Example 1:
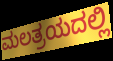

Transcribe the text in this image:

ಮಲತ್ರಯದಲ್ಲಿ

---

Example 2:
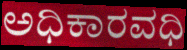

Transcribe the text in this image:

ಅಧಿಕಾರವಧಿ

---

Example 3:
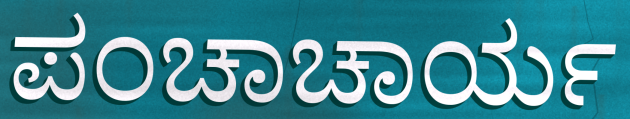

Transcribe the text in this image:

ಪಂಚಾಚಾರ್ಯ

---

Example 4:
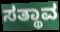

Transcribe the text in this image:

ಸತ್ಥಾವ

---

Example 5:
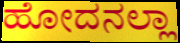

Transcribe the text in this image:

ಹೋದನಲ್ಲಾ